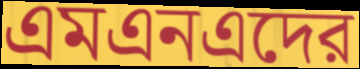
এমএনএদের